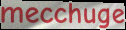
mecchuge